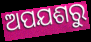
ଅପଯଶରୁ